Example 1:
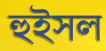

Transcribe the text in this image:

হুইসল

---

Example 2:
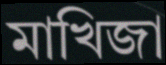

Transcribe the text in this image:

মাখিজা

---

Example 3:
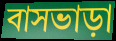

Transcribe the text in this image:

বাসভাড়া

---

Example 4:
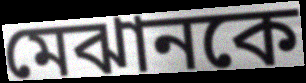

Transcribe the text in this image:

মেঝানকে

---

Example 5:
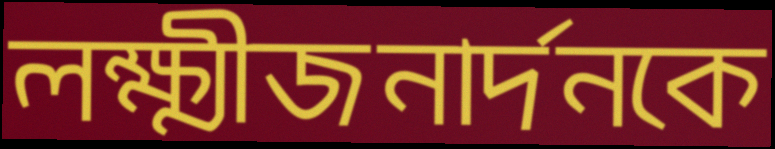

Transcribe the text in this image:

লক্ষ্মীজনার্দনকে